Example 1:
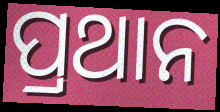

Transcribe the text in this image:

ପ୍ରଥାନ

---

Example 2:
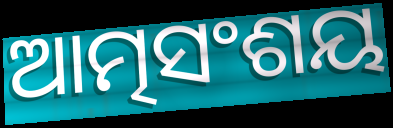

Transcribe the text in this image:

ଆତ୍ମସଂଶୟ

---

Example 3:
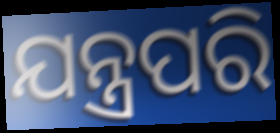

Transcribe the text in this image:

ଯନ୍ତ୍ରପରି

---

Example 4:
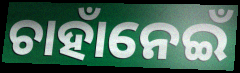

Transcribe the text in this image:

ଚାହାଁନେଇଁ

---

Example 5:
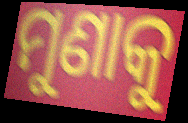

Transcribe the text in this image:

ମୁଣାକୁ